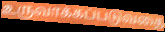
உருவாக்கப்படுவதை